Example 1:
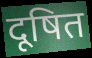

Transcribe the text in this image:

दूषित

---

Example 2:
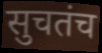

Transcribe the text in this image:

सुचतंच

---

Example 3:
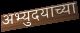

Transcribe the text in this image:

अभ्युदयाच्या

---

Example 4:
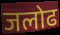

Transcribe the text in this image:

जलोढ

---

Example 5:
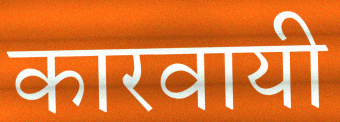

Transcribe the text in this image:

कारवायी